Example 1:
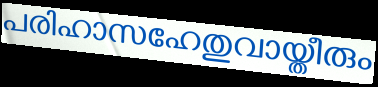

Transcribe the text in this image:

പരിഹാസഹേതുവായ്തീരും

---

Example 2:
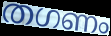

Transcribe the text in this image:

തഗണം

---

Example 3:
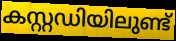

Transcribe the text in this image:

കസ്റ്റഡിയിലുണ്ട്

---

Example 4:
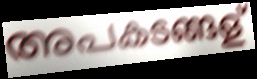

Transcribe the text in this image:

അപകടങ്ങള്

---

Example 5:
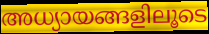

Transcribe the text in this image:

അധ്യായങ്ങളിലൂടെ